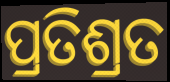
ପ୍ରତିଶ୍ରତ